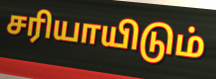
சரியாயிடும்